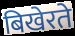
बिखेरते